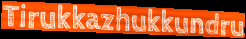
Tirukkazhukkundru